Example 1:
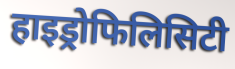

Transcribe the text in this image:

हाइड्रोफिलिसिटी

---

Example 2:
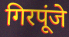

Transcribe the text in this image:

गिरपूंजे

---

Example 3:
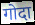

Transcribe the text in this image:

गोदा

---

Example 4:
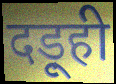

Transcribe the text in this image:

दड़ूही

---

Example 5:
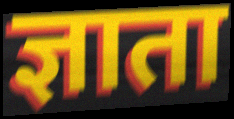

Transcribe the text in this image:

ज्ञाता